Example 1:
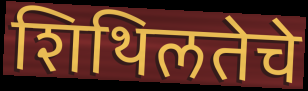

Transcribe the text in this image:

शिथिलतेचे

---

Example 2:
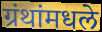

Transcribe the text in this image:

ग्रंथांमधले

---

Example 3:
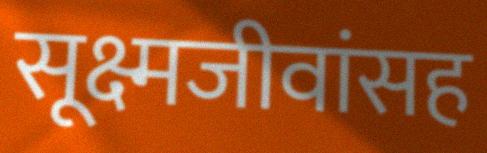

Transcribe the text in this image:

सूक्ष्मजीवांसह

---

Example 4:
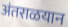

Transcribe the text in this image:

अंतराळयान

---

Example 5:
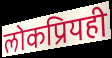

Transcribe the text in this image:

लोकप्रियही